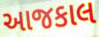
આજકાલ